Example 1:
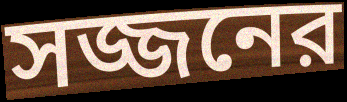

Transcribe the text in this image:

সজ্জনের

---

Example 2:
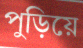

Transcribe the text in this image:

পুড়িয়ে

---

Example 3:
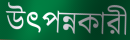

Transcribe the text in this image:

উৎপন্নকারী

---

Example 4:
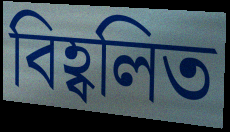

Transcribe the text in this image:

বিহ্বলিত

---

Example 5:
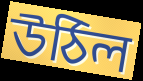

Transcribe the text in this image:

উঠিল